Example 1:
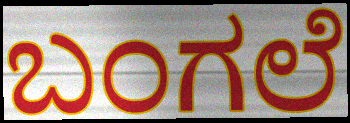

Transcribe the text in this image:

ಬಂಗಲೆ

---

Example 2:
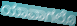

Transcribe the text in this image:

ಯಾವಾಗಲೊ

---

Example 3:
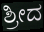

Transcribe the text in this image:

ಶ್ರೀದ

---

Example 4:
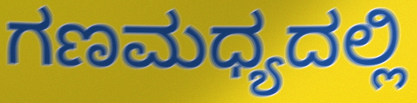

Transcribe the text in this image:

ಗಣಮಧ್ಯದಲ್ಲಿ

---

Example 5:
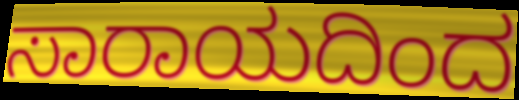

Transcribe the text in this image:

ಸಾರಾಯದಿಂದ